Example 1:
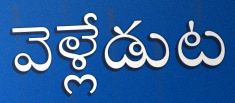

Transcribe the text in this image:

వెళ్లేడుట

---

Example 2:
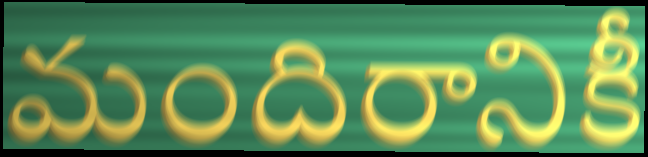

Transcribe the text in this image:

మందిరానికీ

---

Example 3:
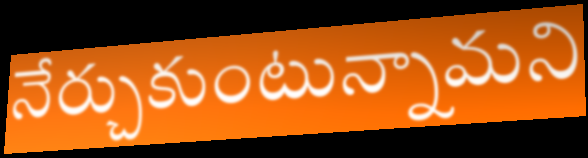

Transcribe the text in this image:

నేర్చుకుంటున్నామని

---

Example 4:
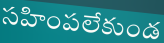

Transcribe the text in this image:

సహింపలేకుండ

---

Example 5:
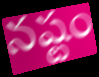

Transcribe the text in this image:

నష్టం